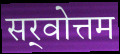
सर्वोत्तम